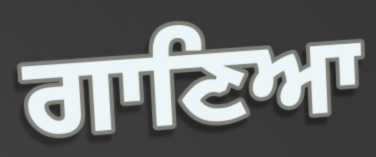
ਗਾਣਿਆ